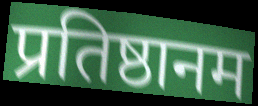
प्रतिष्ठानम